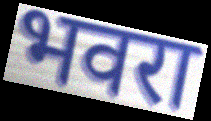
भवरा